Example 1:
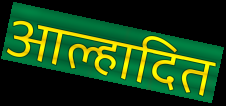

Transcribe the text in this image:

आल्हादित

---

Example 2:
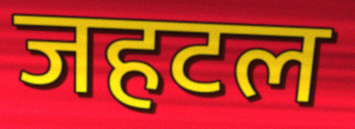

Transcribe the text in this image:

जहटल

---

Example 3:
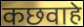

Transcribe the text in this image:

कछवाहे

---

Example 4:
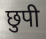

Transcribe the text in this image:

छुपी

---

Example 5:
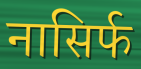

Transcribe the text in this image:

नासिर्फ